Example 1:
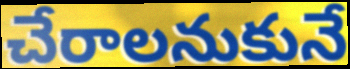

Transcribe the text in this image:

చేరాలనుకునే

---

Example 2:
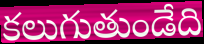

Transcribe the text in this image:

కలుగుతుండేది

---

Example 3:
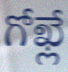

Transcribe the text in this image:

గోఖ్లే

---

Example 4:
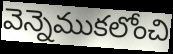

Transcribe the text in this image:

వెన్నెముకలోంచి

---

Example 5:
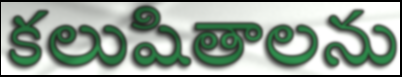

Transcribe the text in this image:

కలుషితాలను